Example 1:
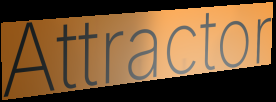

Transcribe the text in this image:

Attractor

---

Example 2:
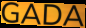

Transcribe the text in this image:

GADA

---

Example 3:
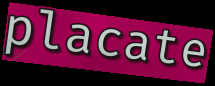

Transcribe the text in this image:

placate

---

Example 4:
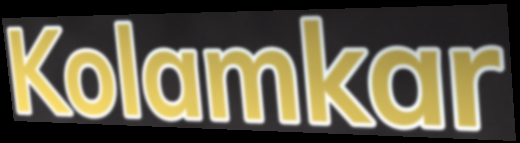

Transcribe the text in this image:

Kolamkar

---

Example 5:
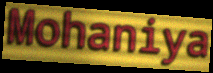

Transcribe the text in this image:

Mohaniya